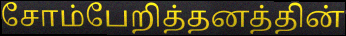
சோம்பேறித்தனத்தின்